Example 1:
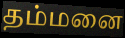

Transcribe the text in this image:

தம்மனை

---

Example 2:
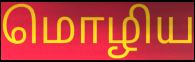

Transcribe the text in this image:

மொழிய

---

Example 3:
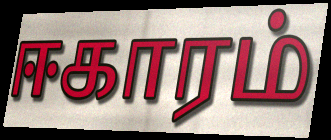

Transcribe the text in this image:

ஈகாரம்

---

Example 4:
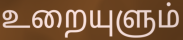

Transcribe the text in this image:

உறையுளும்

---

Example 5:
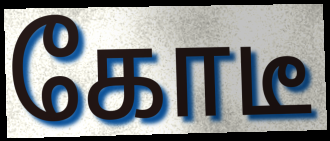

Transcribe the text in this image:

கோடீ